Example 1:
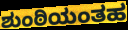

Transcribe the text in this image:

ಶುಂಠಿಯಂತಹ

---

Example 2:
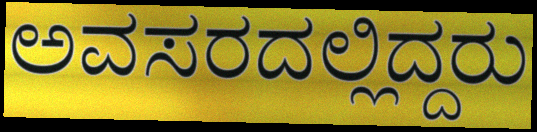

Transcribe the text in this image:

ಅವಸರದಲ್ಲಿದ್ದರು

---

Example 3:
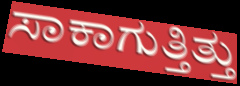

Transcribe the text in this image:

ಸಾಕಾಗುತ್ತಿತ್ತು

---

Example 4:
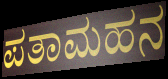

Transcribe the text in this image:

ಪತಾಮಹನ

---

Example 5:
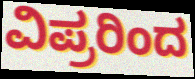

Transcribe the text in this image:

ವಿಪ್ರರಿಂದ